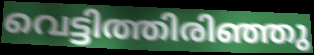
വെട്ടിത്തിരിഞ്ഞു